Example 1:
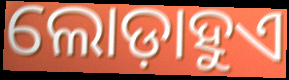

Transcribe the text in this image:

ଲୋଡ଼ାହୁଏ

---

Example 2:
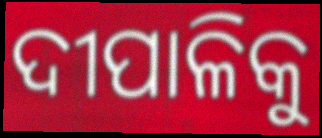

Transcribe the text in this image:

ଦୀପାଳିକୁ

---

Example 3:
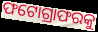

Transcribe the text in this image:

ଫଟୋଗ୍ରାଫରକୁ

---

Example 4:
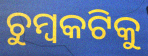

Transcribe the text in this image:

ଚୁମ୍ବକଟିକୁ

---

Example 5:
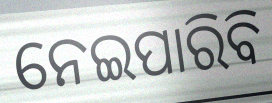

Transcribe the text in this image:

ନେଇପାରିବି